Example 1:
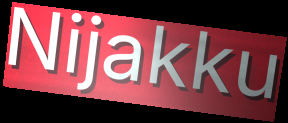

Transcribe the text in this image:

Nijakku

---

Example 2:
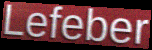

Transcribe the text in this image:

Lefeber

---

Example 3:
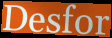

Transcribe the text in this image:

Desfor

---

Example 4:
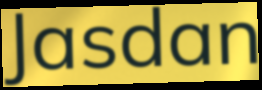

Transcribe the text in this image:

Jasdan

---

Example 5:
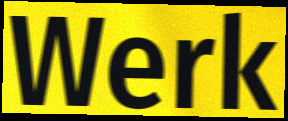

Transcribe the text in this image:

Werk